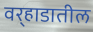
वर्‍हाडातील